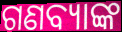
ଗଣବ୍ୟାଙ୍କ